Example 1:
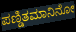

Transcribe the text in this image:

ಪಣ್ಡಿತಮಾನಿನೋ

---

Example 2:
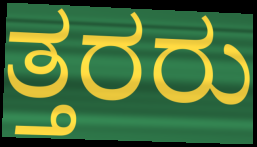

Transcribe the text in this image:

ತ್ತರರು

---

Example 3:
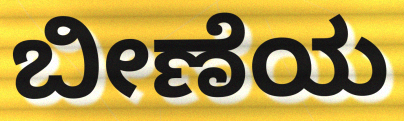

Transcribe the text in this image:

ಬೀಣೆಯ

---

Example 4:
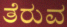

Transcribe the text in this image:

ತೆರುವ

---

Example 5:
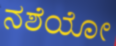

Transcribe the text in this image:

ನಶೆಯೋ